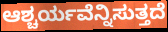
ಆಶ್ಚರ್ಯವೆನ್ನಿಸುತ್ತದೆ